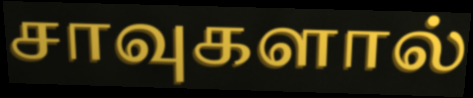
சாவுகளால்